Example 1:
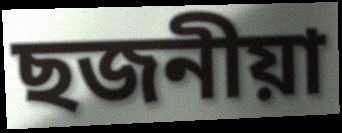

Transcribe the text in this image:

ছজনীয়া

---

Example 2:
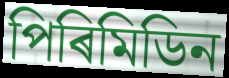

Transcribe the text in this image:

পিৰিমিডিন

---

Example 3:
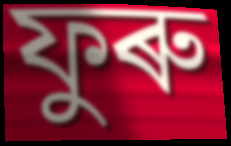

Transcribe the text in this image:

ফুৰু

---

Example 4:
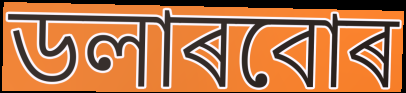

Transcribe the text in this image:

ডলাৰবোৰ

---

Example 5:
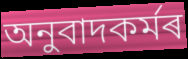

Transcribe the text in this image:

অনুবাদকৰ্মৰ